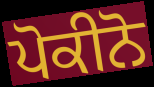
ਪੋਕੀਨੋ